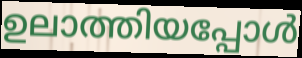
ഉലാത്തിയപ്പോൾ